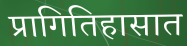
प्रागितिहासात